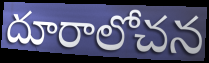
దూరాలోచన